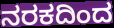
ನರಕದಿಂದ